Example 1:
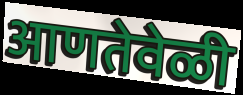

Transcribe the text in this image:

आणतेवेळी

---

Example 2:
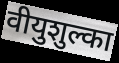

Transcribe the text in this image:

वीयुशुल्का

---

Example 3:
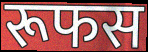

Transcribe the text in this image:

रूफस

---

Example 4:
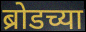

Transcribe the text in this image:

ब्रोडच्या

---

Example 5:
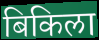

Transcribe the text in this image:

बिकिला